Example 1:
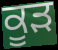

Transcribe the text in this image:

ਕੂੜ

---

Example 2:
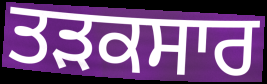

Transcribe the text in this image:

ਤੜਕਸਾਰ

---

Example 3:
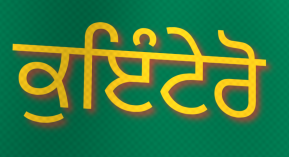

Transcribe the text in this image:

ਕੁਇੰਟੇਰੋ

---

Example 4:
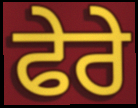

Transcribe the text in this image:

ਫੇਰੇ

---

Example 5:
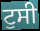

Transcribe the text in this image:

ਟੁਸੀ